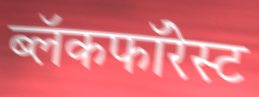
ब्लॅकफॉरेस्ट